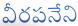
వీరపనేని